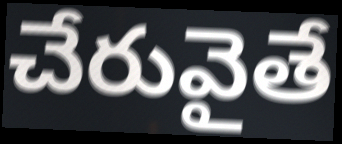
చేరువైతే